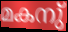
മകനു്